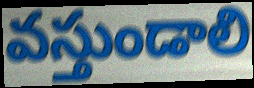
వస్తుండాలి